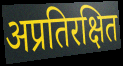
अप्रतिरक्षित